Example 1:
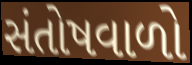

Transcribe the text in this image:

સંતોષવાળો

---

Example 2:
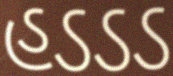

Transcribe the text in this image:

હડડડ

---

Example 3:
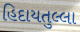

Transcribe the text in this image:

હિદાયતુલ્લા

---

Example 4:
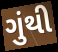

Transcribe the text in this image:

ગુંથી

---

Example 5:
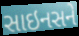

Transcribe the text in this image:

સાઇનસને